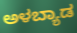
ಅಳಬ್ಯಾಡ